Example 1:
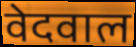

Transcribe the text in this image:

वेदवाल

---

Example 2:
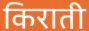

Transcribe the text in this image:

किराती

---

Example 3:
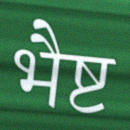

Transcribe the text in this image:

भैष्ट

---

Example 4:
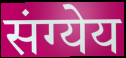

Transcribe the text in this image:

संग्येय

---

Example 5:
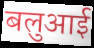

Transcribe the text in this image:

बलुआई